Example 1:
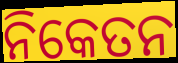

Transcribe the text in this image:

ନିକେତନ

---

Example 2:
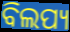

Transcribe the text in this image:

ବିଲପ୍ୟ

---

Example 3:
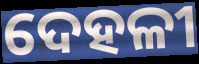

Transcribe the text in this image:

ଦେହଳୀ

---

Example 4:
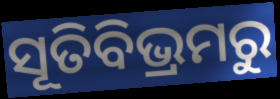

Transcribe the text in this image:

ସୂତିବିଭ୍ରମରୁ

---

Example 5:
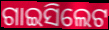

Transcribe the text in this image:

ଗାଇସିଲେଟ